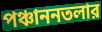
পঞ্চাননতলার